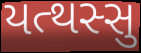
યત્થસ્સુ